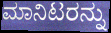
ಮಾನಿಟರನ್ನು